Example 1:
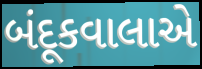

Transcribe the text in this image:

બંદૂકવાલાએ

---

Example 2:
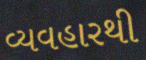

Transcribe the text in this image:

વ્યવહારથી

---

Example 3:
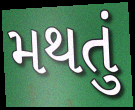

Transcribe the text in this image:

મથતું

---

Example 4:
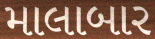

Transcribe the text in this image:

માલાબાર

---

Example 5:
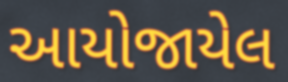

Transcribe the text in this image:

આયોજાયેલ